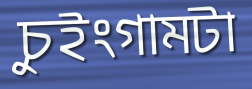
চুইংগামটা